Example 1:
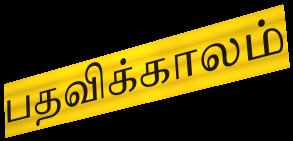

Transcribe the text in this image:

பதவிக்காலம்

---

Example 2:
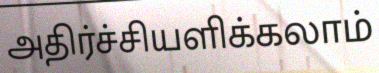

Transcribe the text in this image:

அதிர்ச்சியளிக்கலாம்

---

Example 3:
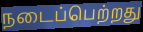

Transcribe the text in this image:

நடைப்பெற்றது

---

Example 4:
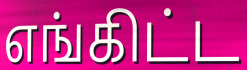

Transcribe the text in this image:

எங்கிட்ட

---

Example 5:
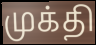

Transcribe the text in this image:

முக்தி